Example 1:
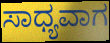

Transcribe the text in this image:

ಸಾಧ್ಯವಾಗ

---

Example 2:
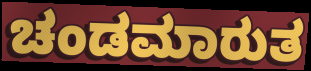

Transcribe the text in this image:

ಚಂಡಮಾರುತ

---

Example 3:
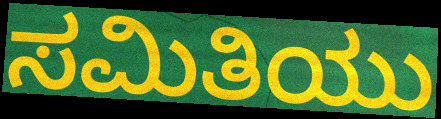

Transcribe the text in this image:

ಸಮಿತಿಯು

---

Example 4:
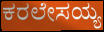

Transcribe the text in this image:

ಕರಲೇಸಯ್ಯ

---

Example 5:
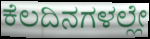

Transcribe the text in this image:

ಕೆಲದಿನಗಳಲ್ಲೇ